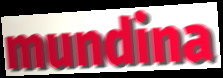
mundina